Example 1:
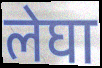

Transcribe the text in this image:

लेघा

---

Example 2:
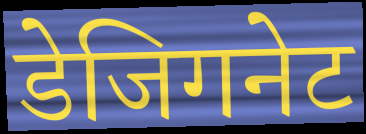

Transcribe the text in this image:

डेजिगनेट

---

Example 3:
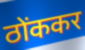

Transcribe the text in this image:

ठोंककर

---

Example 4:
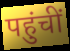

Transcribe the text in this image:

पहुंचीं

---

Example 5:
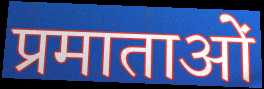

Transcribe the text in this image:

प्रमाताओं